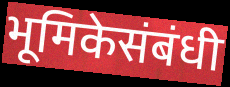
भूमिकेसंबंधी